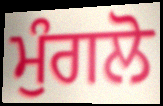
ਮੁੰਗਲੋ